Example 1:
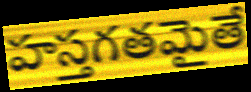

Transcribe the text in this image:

హస్తగతమైతే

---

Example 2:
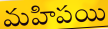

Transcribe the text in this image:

మహిపయి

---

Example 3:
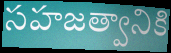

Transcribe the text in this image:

సహజత్వానికి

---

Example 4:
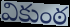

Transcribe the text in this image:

వికుంఠ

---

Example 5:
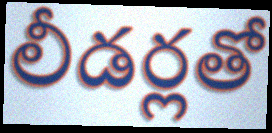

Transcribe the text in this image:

లీడర్లతో